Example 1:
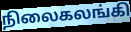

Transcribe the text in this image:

நிலைகலங்கி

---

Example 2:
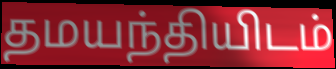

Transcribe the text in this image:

தமயந்தியிடம்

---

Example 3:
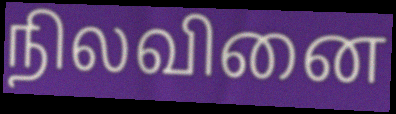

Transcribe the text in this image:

நிலவினை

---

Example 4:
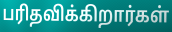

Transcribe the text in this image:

பரிதவிக்கிறார்கள்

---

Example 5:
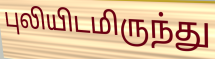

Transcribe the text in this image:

புலியிடமிருந்து